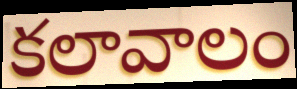
కలావాలం